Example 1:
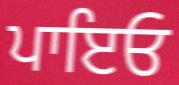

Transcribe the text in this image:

ਪਾਇਓ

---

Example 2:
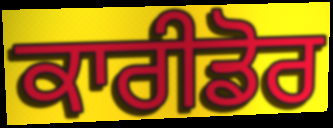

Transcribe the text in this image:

ਕਾਰੀਡੋਰ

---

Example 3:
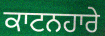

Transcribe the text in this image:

ਕਾਟਨਹਾਰੇ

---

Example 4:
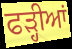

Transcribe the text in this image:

ਫੜ੍ਹੀਆਂ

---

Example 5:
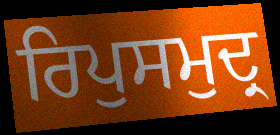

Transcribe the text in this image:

ਰਿਪੁਸਮੁਦ੍ਰ